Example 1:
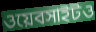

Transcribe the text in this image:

ওয়েবসাইটও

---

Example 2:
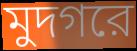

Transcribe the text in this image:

মুদগরে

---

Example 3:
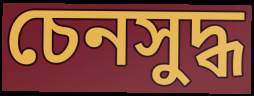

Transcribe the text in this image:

চেনসুদ্ধ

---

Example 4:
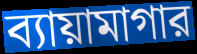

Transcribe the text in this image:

ব্যায়ামাগার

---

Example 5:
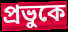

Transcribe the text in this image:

প্রভুকে